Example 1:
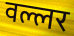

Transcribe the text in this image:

वल्लर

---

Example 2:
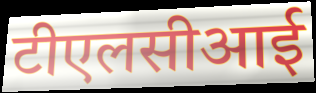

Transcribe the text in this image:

टीएलसीआई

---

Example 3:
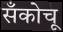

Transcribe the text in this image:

सँकोचू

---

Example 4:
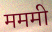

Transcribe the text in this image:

मममी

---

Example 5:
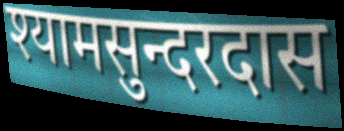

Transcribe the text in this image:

श्यामसुन्दरदास